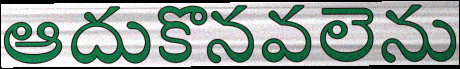
ఆదుకొనవలెను